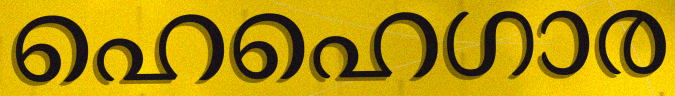
ഹെഹെഗാര